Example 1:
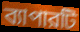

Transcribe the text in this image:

ব্যাপারটি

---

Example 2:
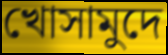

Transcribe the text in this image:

খোসামুদে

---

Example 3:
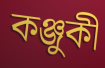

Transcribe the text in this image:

কঞ্জুকী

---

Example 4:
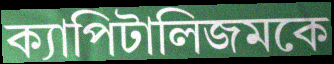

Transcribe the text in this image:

ক্যাপিটালিজমকে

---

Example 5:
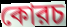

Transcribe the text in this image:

কোরচ